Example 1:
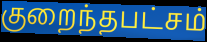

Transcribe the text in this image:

குறைந்தபட்சம்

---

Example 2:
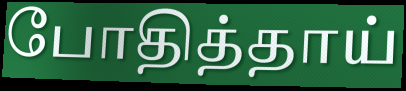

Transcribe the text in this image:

போதித்தாய்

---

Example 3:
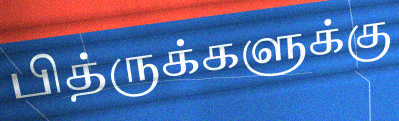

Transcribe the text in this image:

பித்ருக்களுக்கு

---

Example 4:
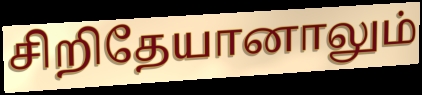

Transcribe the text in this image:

சிறிதேயானாலும்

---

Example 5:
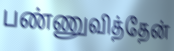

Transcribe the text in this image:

பண்ணுவித்தேன்